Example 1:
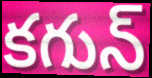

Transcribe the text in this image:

కగున్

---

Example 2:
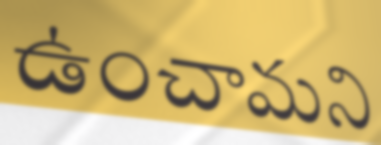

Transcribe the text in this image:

ఉంచామని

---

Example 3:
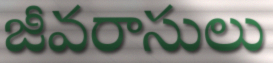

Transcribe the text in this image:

జీవరాసులు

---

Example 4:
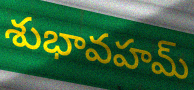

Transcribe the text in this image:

శుభావహమ్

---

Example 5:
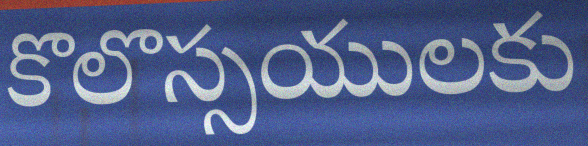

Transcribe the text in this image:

కొలొస్సయులకు